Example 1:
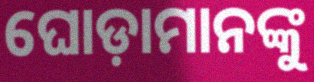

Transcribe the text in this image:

ଘୋଡ଼ାମାନଙ୍କୁ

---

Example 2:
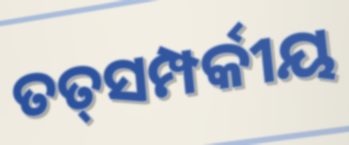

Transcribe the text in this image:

ତତ୍‍ସମ୍ପର୍କୀୟ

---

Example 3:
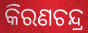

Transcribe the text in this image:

କିରଣଚନ୍ଦ୍ର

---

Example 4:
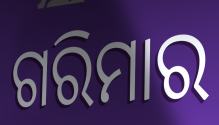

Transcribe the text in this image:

ଗରିମାର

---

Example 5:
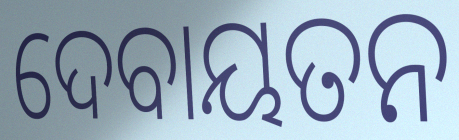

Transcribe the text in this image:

ଦେବାୟତନ